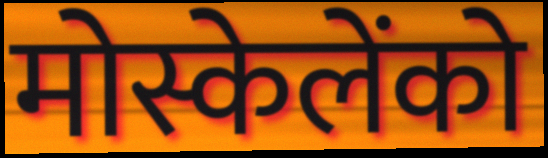
मोस्केलेंको